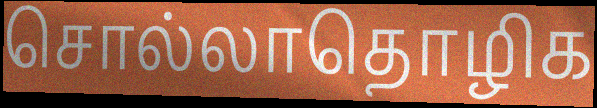
சொல்லாதொழிக